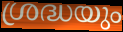
ശ്രദ്ധയും